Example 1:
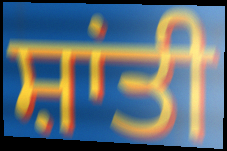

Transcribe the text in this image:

ਸ਼ਾਂਤੀ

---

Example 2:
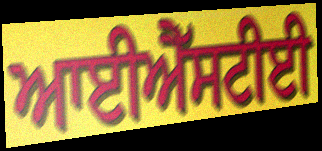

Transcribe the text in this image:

ਆਈਐੱਸਟੀਈ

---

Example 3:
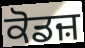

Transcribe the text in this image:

ਕੋਡਜ਼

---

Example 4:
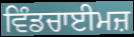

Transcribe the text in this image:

ਵਿੰਡਚਾਈਮਜ਼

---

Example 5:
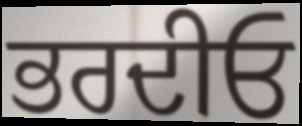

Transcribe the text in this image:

ਭਰਦੀਓ